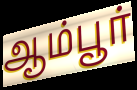
ஆம்பூர்